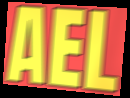
AEL